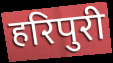
हरिपुरी